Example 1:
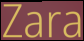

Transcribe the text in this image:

Zara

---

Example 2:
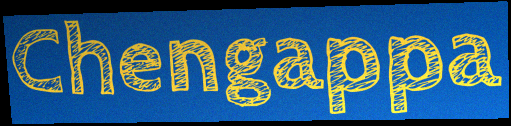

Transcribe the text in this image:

Chengappa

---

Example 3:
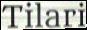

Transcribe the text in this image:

Tilari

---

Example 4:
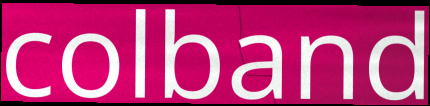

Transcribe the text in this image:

colband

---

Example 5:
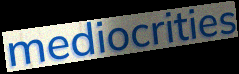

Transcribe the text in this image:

mediocrities